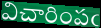
విచారింపఁ